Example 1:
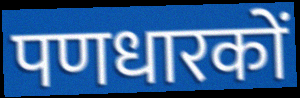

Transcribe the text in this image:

पणधारकों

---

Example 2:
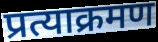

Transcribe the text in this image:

प्रत्याक्रमण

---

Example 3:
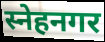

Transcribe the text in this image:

स्नेहनगर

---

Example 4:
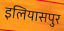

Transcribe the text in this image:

इलियासपुर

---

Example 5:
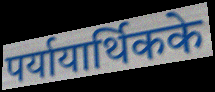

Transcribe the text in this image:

पर्यायार्थिकके